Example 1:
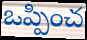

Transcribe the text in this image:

ఒప్పించ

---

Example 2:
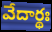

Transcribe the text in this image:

వేదార్థః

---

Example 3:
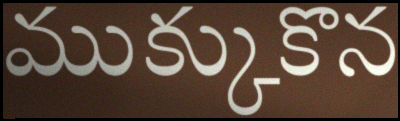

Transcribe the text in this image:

ముక్కుకొన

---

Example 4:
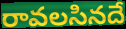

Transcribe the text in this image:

రావలసినదే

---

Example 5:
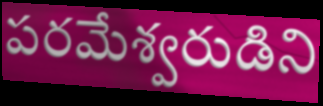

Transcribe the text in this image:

పరమేశ్వరుడిని